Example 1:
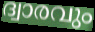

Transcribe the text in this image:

ദ്വാരവും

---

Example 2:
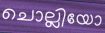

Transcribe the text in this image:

ചൊല്ലിയോ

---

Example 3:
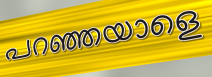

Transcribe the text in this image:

പറഞ്ഞയാളെ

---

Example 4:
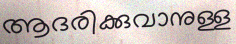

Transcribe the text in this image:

ആദരിക്കുവാനുള്ള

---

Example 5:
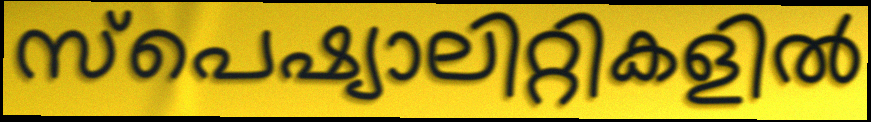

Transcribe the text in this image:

സ്പെഷ്യാലിറ്റികളിൽ